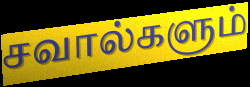
சவால்களும்